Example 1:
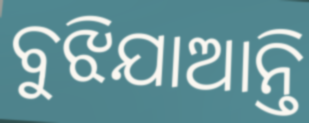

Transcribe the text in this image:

ବୁଝିଯାଆନ୍ତି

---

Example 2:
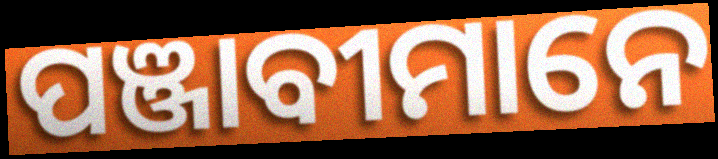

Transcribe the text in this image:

ପଞ୍ଜାବୀମାନେ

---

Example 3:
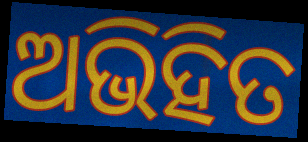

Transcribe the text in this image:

ଅଭିହିତ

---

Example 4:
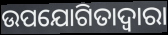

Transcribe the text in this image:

ଉପଯୋଗିତାଦ୍ୱାରା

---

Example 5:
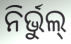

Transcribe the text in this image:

ନିର୍ଭୁଲ୍